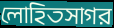
লোহিতসাগর